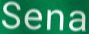
Sena